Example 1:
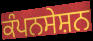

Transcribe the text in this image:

ਕੰਪਨਸੇਸ਼ਨ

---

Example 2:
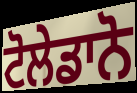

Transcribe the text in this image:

ਟੋਲੇਡਾਨੋ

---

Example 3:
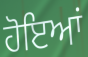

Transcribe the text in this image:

ਹੋਇਆਂ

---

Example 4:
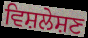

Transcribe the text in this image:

ਵਿਸ਼ਲੇਸ਼ਣ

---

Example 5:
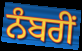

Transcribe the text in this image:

ਨੰਬਰੀਂ